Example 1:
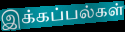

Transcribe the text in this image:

இக்கப்பல்கள்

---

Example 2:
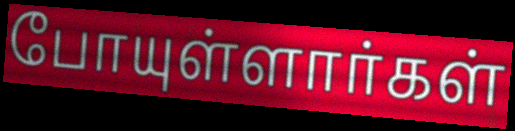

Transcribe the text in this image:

போயுள்ளார்கள்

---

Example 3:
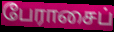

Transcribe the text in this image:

பேராசைப்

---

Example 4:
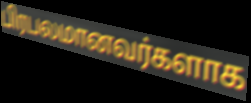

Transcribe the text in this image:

பிரபலமானவர்களாக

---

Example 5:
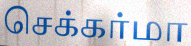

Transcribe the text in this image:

செக்கர்மா